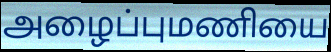
அழைப்புமணியை